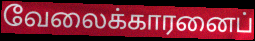
வேலைக்காரனைப்